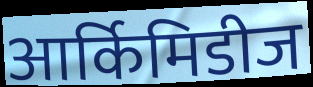
आर्किमिडीज